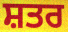
ਸ਼ਤਰ